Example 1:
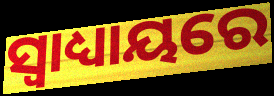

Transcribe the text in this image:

ସ୍ଵାଧ୍ୟାୟରେ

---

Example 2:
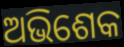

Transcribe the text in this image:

ଅଭିଶେକ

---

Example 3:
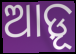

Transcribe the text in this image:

ଆଡ଼ୂ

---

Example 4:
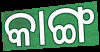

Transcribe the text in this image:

କାଙ୍ଗ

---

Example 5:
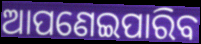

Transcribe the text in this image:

ଆପଣେଇପାରିବ